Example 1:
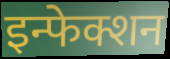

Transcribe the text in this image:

इन्फेक्शन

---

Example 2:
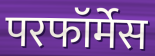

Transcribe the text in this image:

परफॉर्मेस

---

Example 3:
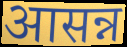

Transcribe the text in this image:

आसन्न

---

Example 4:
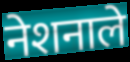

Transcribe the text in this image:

नेशनाले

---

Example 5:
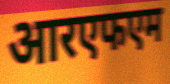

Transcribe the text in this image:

आरएफएम